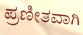
ಪ್ರಣೀತವಾಗಿ